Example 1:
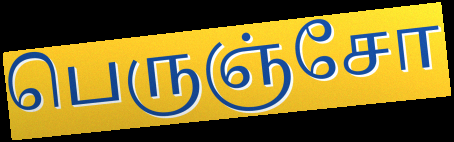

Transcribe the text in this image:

பெருஞ்சோ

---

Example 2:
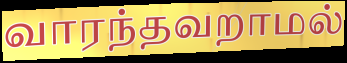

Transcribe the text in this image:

வாரந்தவறாமல்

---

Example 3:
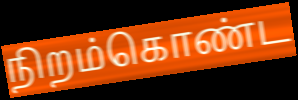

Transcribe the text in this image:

நிறம்கொண்ட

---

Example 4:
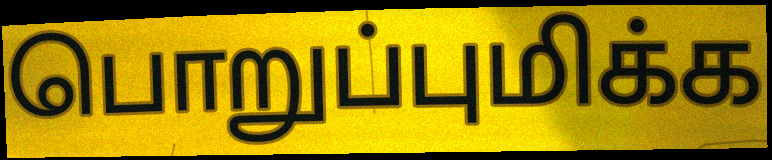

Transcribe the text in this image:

பொறுப்புமிக்க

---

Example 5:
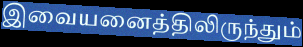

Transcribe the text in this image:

இவையனைத்திலிருந்தும்